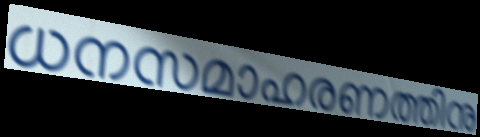
ധനസമാഹരണത്തിനു